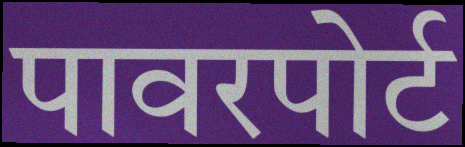
पावरपोर्ट